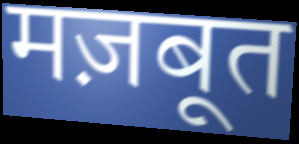
मज़बूत